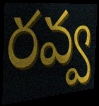
రవ్వ